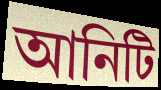
আনিটি